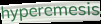
hyperemesis